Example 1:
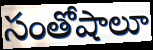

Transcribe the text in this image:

సంతోషాలూ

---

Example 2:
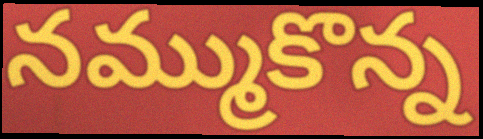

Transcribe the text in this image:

నమ్ముకొన్న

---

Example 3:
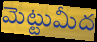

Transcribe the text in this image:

మెట్టుమీద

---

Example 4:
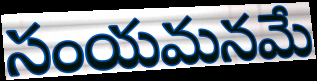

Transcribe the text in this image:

సంయమనమే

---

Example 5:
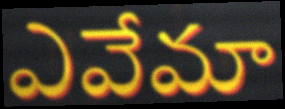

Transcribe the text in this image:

ఎవేమా